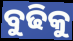
ବୁଢିକୁ